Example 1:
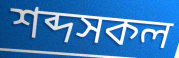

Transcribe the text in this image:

শব্দসকল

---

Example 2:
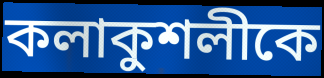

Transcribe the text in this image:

কলাকুশলীকে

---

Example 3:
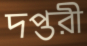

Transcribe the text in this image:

দপ্তরী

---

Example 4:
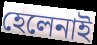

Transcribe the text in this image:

হেলেনাই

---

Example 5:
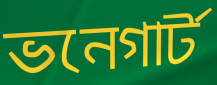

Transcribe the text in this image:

ভনেগার্ট